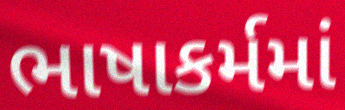
ભાષાકર્મમાં